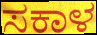
ಸಕಾಳ